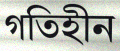
গতিহীন